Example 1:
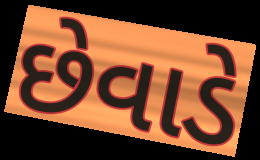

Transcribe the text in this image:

છેવાડે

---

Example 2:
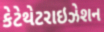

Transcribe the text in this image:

કેટેથેટરાઇઝેશન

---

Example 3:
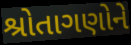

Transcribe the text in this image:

શ્રોતાગણોને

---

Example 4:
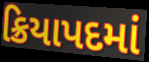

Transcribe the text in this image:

ક્રિયાપદમાં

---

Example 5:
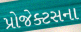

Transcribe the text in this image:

પ્રોજેક્ટસના